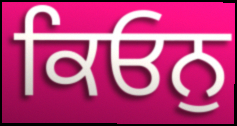
ਕਿਓਨੁ